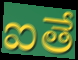
ఐతే